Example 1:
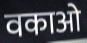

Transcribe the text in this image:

वकाओ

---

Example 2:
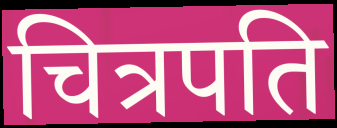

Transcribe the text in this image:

चित्रपति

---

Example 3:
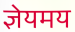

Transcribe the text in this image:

ज्ञेयमय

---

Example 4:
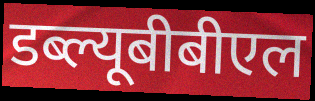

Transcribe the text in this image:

डब्ल्यूबीबीएल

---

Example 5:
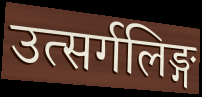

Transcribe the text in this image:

उत्सर्गलिङ्ग